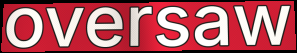
oversaw